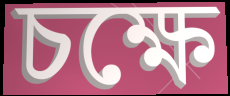
চক্ষে